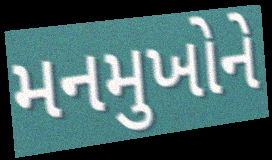
મનમુખોને